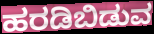
ಹರಡಿಬಿಡುವ